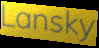
Lansky